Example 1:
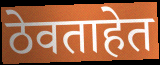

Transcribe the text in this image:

ठेवताहेत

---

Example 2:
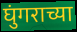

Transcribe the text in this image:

घुंगराच्या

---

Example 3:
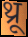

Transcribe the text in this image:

थ्रू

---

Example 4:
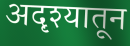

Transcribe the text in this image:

अदृश्यातून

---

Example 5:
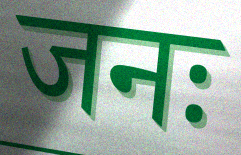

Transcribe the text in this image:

जनः